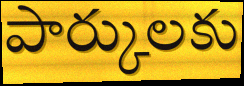
పార్కులకు